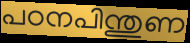
പഠനപിന്തുണ